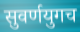
सुवर्णयुगच